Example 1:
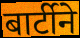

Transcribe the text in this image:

बार्टीने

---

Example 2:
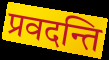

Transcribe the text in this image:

प्रवदन्ति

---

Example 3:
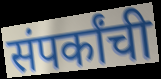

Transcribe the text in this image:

संपर्कांची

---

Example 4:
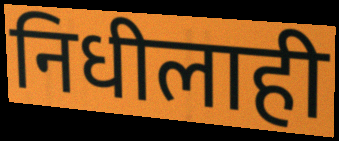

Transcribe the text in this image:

निधीलाही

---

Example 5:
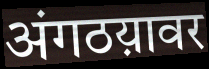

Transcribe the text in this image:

अंगठय़ावर